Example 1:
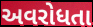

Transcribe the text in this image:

અવરોધતા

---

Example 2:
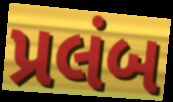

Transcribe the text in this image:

પ્રલંબ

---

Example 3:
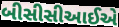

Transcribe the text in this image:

બીસીસીઆઈએ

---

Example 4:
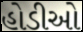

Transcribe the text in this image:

હોડીઓ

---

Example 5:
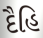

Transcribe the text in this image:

દૈહિ